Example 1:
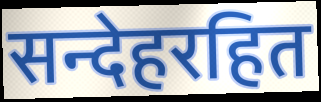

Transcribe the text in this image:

सन्देहरहित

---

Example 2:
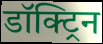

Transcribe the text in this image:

डॉक्ट्रिन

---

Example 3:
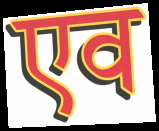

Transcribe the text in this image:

एव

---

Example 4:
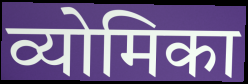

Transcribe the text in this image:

व्योमिका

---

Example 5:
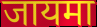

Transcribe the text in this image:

जायमा